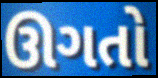
ઊગતો